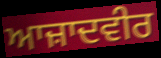
ਆਜ਼ਾਦਵੀਰ